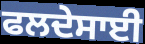
ਫਲਦੇਸਾਈ